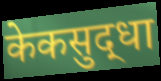
केकसुद्धा